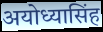
अयोध्यासिंह